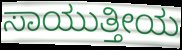
ಸಾಯುತ್ತೀಯ